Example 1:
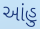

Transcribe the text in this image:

આંહુ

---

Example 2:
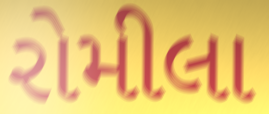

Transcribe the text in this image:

રોમીલા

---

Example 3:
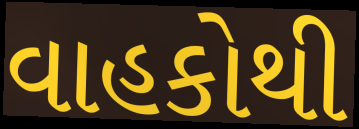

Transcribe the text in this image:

વાહકોથી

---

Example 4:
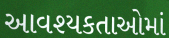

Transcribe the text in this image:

આવશ્યકતાઓમાં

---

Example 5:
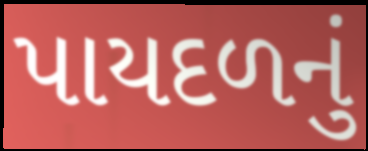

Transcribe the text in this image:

પાયદળનું